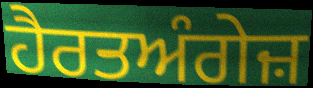
ਹੈਰਤਅੰਗੇਜ਼